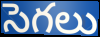
సెగలు